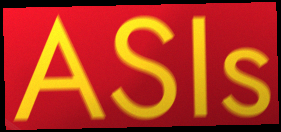
ASIs